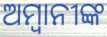
ଅମ୍ବାନୀଙ୍କ